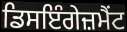
ਡਿਸਇੰਗੇਜ਼ਮੈਂਟ